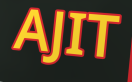
AJIT